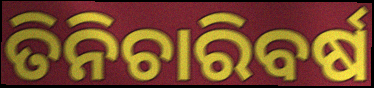
ତିନିଚାରିବର୍ଷ